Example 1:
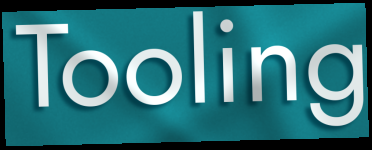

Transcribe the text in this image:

Tooling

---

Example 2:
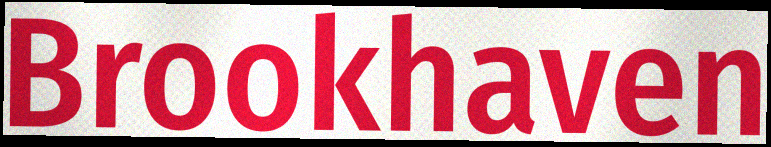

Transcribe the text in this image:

Brookhaven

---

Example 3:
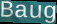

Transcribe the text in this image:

Baug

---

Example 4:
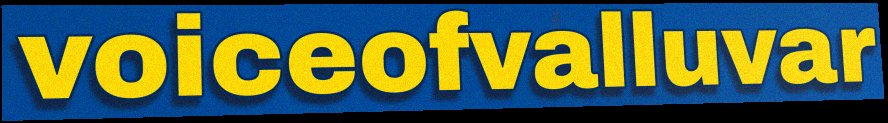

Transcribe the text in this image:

voiceofvalluvar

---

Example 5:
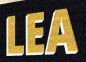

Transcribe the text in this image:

LEA